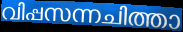
വിപ്പസന്നചിത്താ